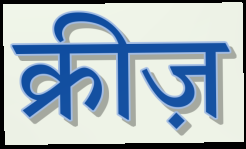
क्रीज़